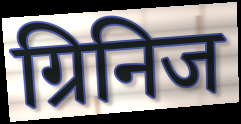
ग्रिनिज